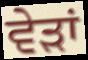
ਵੇੜਾਂ